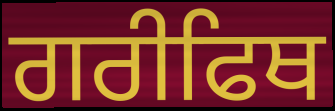
ਗਰੀਫਿਥ